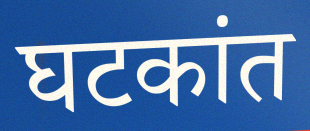
घटकांत